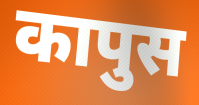
कापुस